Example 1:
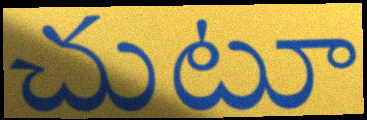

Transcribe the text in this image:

చుటూ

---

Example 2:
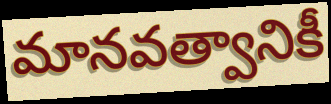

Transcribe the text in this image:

మానవత్వానికీ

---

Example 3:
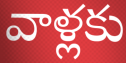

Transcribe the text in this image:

వాళ్లకు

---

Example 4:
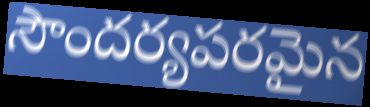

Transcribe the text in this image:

సౌందర్యపరమైన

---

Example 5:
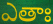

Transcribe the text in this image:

ఎతాః